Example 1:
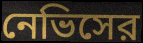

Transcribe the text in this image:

নেভিসের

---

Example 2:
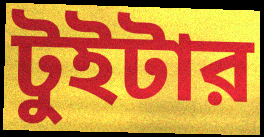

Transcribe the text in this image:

টুইটার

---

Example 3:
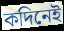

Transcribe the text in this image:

কদিনেই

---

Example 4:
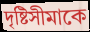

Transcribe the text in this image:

দৃষ্টিসীমাকে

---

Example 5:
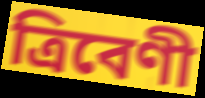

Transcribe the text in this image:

ত্রিবেণী